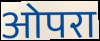
ओपरा